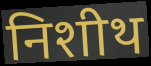
निशीथ